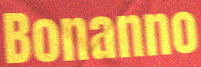
Bonanno